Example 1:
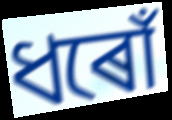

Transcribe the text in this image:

ধৰোঁ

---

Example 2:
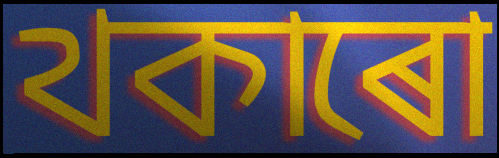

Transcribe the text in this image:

থকাৰো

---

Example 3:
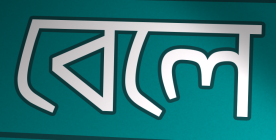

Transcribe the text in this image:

বেলে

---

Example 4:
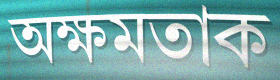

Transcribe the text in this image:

অক্ষমতাক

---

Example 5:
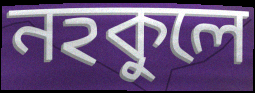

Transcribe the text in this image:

নহকুলে